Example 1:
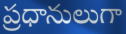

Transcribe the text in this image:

ప్రధానులుగా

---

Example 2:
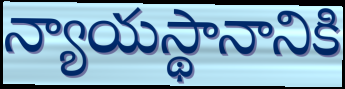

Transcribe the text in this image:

న్యాయస్థానానికి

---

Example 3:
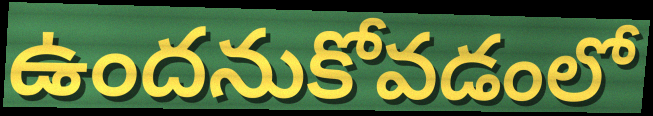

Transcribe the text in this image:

ఉందనుకోవడంలో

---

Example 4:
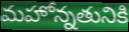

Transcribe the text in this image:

మహోన్నతునికి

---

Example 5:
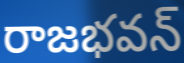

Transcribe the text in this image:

రాజభవన్